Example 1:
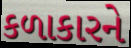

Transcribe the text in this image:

કળાકારને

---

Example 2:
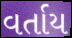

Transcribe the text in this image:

વર્તાય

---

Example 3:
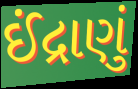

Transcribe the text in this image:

ઈંદ્રાણું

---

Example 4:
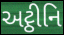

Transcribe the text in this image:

અટ્ઠીનિ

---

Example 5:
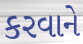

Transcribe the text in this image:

કરવાને